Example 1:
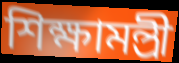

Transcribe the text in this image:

শিক্ষামন্ত্রী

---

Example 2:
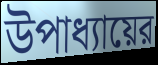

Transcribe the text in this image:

উপাধ্যায়ের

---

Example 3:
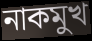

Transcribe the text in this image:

নাকমুখ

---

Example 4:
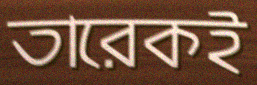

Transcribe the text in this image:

তারেকই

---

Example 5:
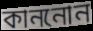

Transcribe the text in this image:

কাননোন